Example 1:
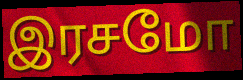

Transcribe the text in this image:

இரசமோ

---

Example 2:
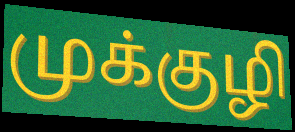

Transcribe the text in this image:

முக்குழி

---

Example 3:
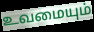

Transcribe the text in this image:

உவமையும்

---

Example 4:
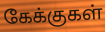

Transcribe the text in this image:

கேக்குகள்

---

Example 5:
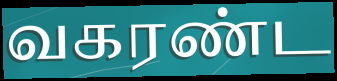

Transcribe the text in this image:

வகரண்ட